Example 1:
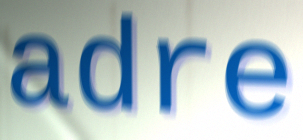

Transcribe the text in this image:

adre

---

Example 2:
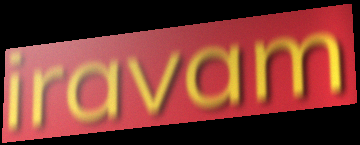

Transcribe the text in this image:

iravam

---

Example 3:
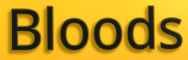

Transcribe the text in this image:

Bloods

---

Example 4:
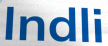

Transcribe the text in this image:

Indli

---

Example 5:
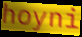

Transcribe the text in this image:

hoyni